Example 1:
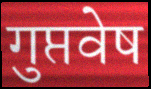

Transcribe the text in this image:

गुप्तवेष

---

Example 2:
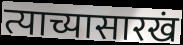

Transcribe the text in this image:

त्याच्यासारखं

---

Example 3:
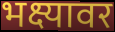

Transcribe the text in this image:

भक्ष्यावर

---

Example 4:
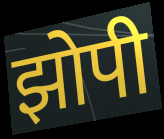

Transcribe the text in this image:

झोपी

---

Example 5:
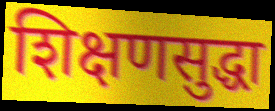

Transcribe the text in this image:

शिक्षणसुद्धा